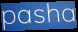
pasha